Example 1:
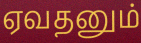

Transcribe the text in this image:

ஏவதனும்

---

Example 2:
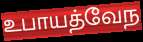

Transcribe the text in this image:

உபாயத்வேந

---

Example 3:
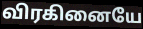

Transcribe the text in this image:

விரகினையே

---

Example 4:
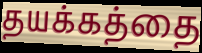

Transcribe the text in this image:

தயக்கத்தை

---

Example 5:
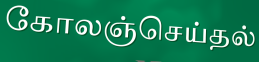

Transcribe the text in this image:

கோலஞ்செய்தல்